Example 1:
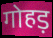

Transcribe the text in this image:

गोहड़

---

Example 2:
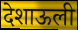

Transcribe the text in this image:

देशाऊली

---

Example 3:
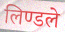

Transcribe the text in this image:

लिण्डले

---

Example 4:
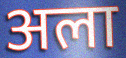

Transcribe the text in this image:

अला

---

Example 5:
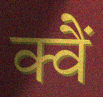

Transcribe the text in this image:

क्वैं